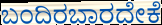
ಬಂದಿರಬಾರದೇಕೆ